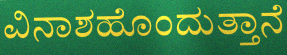
ವಿನಾಶಹೊಂದುತ್ತಾನೆ